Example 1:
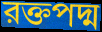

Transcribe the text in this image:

রক্তপদ্ম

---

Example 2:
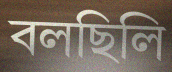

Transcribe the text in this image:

বলছিলি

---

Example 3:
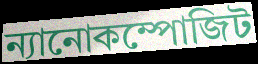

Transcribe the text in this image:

ন্যানোকম্পোজিট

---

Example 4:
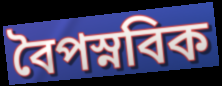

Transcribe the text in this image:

বৈপস্নবিক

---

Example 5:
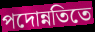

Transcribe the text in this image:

পদোন্নতিতে